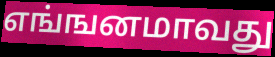
எங்ஙனமாவது